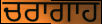
ਚਰਾਗਾਹ